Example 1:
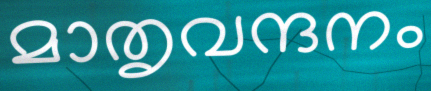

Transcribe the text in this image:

മാതൃവന്ദനം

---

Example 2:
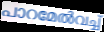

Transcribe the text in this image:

പാറമേൽവച്ച്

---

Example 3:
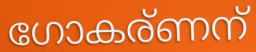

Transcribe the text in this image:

ഗോകര്ണന്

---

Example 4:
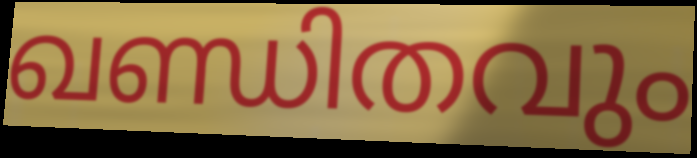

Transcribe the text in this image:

ഖണ്ഡിതവും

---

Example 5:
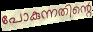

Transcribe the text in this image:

പോകുന്നതിന്റെ